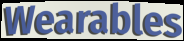
Wearables